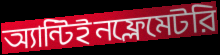
অ্যান্টিইনফ্লেমেটরি